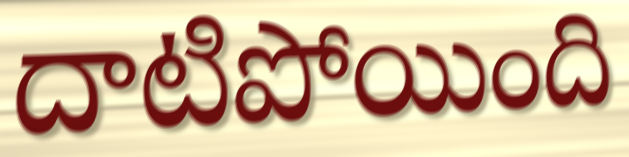
దాటిపోయింది